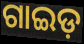
ଗାଇଡ଼